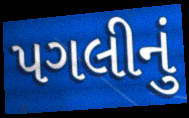
પગલીનું